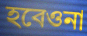
হবেওনা